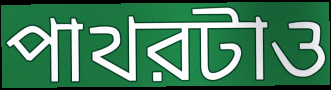
পাথরটাও